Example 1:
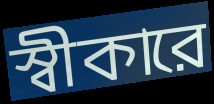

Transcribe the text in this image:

স্বীকারে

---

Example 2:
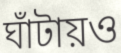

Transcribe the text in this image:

ঘাঁটায়ও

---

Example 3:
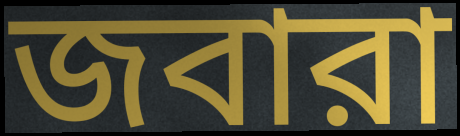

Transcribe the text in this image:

জবারা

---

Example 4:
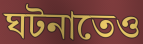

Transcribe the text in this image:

ঘটনাতেও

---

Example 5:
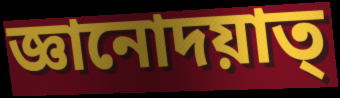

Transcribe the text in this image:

জ্ঞানোদয়াত্